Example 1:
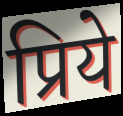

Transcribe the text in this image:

प्रिये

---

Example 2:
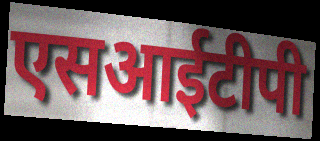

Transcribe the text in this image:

एसआईटीपी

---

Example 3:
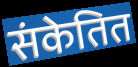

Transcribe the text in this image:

संकेतित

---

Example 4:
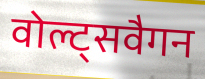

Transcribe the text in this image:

वोल्ट्सवैगन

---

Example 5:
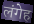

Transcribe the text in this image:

लंगेह